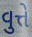
વુત્તે